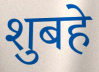
शुबहे